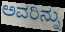
ಅವರಿನ್ನು